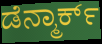
ಡೆನ್ಮಾರ್ಕ್